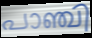
പാഞ്ചി